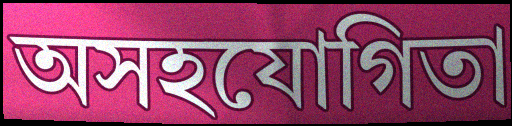
অসহযোগিতা